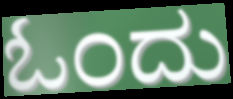
ಓಂದು